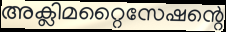
അക്ലിമറ്റൈസേഷന്റെ